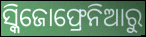
ସ୍କିଜୋଫ୍ରେନିଆରୁ